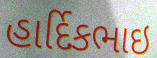
હાર્દિકભાઇ